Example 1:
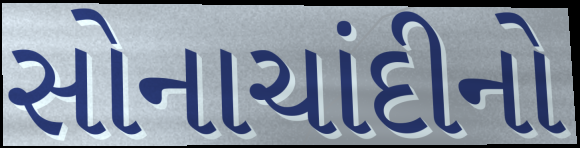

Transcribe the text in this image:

સોનાચાંદીનો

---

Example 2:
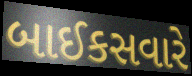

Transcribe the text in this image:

બાઈકસવારે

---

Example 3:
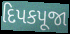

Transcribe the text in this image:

દિપકપૂજા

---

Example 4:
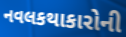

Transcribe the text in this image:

નવલકથાકારોની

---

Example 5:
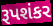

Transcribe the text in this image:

રૂપશંકર